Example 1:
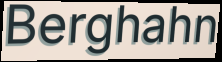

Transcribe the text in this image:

Berghahn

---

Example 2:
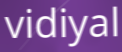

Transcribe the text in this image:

vidiyal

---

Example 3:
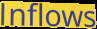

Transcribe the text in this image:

Inflows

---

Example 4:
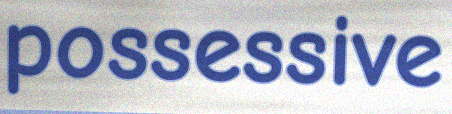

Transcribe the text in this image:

possessive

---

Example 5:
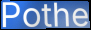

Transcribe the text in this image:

Pothe